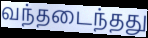
வந்தடைந்தது